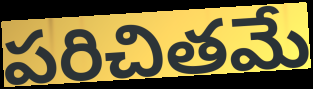
పరిచితమే